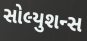
સોલ્યુશન્સ